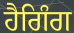
ਹੈਗਿੰਗ